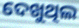
ଦେଖୁଥିଲ